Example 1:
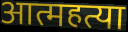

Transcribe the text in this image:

आत्महत्या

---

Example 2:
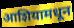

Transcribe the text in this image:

आशियामधून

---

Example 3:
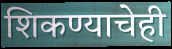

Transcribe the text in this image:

शिकण्याचेही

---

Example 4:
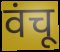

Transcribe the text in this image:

वंचू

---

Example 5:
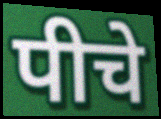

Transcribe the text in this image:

पीचे